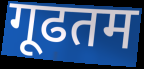
गूढतम